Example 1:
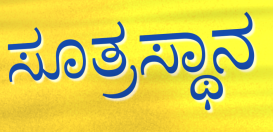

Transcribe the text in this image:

ಸೂತ್ರಸ್ಥಾನ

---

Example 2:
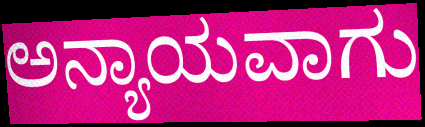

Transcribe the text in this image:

ಅನ್ಯಾಯವಾಗು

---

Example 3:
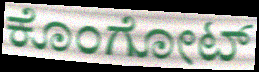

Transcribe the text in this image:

ಕೊಂಗೋಟ್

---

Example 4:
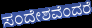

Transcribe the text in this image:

ಸಂದೇಶವೆಂದರೆ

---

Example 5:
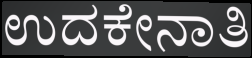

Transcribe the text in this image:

ಉದಕೇನಾತಿ